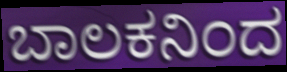
ಬಾಲಕನಿಂದ